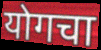
योगचा